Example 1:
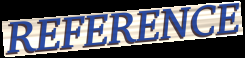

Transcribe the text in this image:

REFERENCE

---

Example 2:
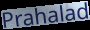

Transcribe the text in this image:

Prahalad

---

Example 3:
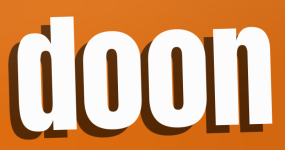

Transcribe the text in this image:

doon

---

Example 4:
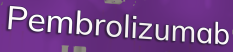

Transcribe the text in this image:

Pembrolizumab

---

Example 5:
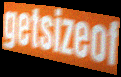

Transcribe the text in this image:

getsizeof